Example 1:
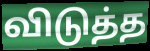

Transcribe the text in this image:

விடுத்த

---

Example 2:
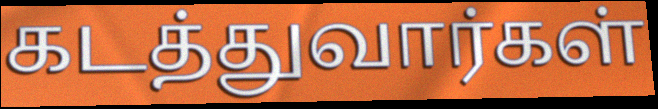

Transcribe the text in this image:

கடத்துவார்கள்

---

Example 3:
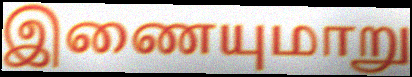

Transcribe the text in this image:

இணையுமாறு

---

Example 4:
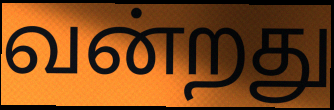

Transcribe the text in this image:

வன்றது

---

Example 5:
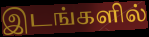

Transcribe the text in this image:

இடங்களில்